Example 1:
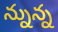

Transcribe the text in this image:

న్నున్న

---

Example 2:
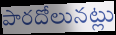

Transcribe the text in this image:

పారదోలునట్లు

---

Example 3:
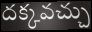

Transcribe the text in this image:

దక్కవచ్చు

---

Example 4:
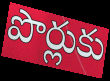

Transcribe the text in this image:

పొర్లుకు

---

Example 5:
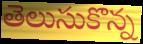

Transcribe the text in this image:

తెలుసుకొన్న